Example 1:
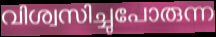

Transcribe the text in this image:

വിശ്വസിച്ചുപോരുന്ന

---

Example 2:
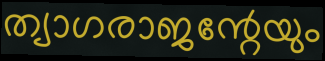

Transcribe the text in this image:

ത്യാഗരാജന്റേയും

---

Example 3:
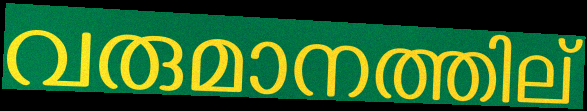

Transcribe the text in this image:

വരുമാനത്തില്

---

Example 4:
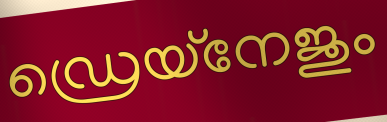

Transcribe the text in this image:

ഡ്രെയ്നേജും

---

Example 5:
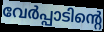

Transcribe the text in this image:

വേർപ്പാടിന്റെ